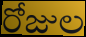
రోజుల